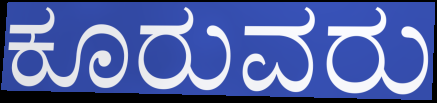
ಕೂರುವರು